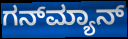
ಗನ್‌ಮ್ಯಾನ್